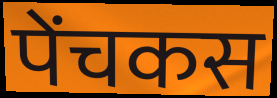
पेंचकस